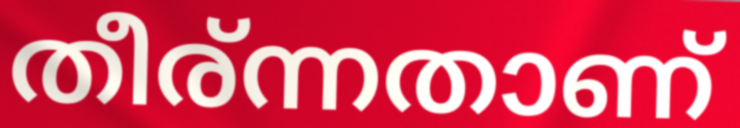
തീര്ന്നതാണ്